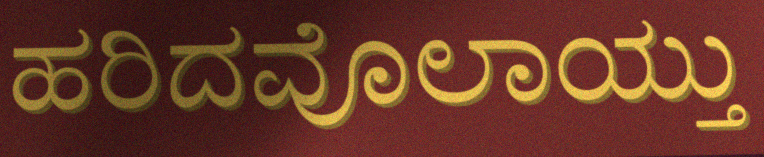
ಹರಿದವೊಲಾಯ್ತು